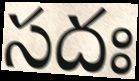
సదః